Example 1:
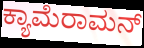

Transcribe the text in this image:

ಕ್ಯಾಮೆರಾಮನ್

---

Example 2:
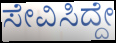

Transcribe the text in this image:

ಸೇವಿಸಿದ್ದೇ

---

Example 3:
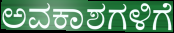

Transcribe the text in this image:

ಅವಕಾಶಗಳಿಗೆ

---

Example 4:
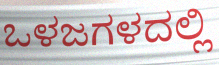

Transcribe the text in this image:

ಒಳಜಗಳದಲ್ಲಿ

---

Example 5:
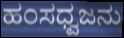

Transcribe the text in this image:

ಹಂಸಧ್ವಜನು